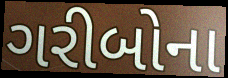
ગરીબોના